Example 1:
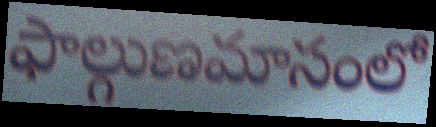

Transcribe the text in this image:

ఫాల్గుణమాసంలో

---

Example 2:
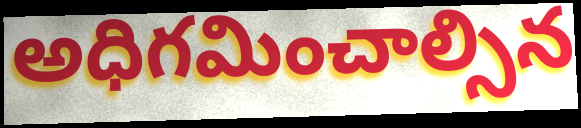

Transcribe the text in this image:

అధిగమించాల్సిన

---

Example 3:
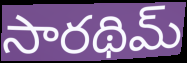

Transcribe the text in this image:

సారథిమ్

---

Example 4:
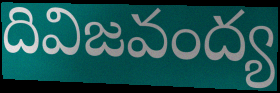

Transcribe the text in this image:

దివిజవంద్య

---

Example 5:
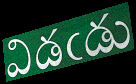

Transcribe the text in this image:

విడఁడు